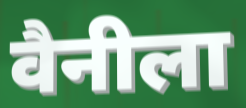
वैनीला